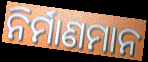
ନିର୍ମାଣମାନ